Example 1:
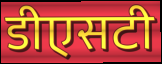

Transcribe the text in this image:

डीएसटी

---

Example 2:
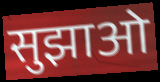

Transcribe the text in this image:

सुझाओ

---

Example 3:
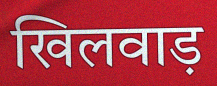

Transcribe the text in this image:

खिलवाड़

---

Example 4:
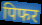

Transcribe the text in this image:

पिफर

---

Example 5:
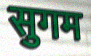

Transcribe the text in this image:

सुगम